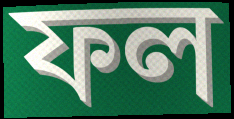
ফল